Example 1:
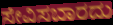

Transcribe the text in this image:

ಸೇವಿಸಬಾರದು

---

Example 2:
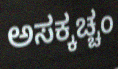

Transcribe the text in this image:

ಅಸಕ್ಕಚ್ಚಂ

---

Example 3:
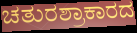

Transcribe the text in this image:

ಚತುರಶ್ರಾಕಾರದ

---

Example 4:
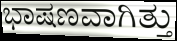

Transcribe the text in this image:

ಭಾಷಣವಾಗಿತ್ತು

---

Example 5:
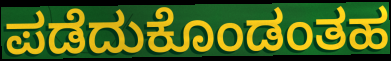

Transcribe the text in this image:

ಪಡೆದುಕೊಂಡಂತಹ